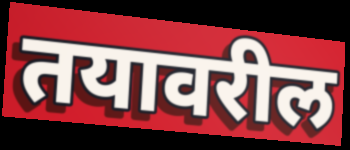
तयावरील